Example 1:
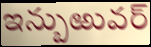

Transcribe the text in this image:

ఇన్బుఱువర్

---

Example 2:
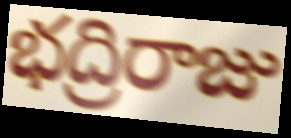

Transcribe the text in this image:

భద్రిరాజు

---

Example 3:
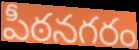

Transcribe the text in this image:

పీఠనగరం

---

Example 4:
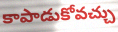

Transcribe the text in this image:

కాపాడుకోవచ్చు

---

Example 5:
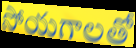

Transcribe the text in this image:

సోయగాలతో